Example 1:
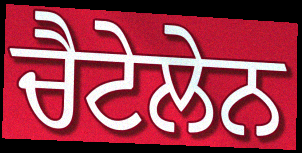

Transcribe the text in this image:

ਚੈਟੇਲੇਨ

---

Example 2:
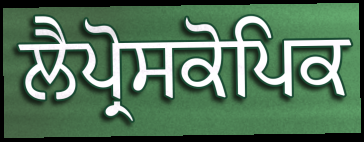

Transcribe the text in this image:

ਲੈਪ੍ਰੋਸਕੋਪਿਕ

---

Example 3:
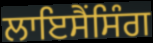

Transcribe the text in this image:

ਲਾਇਸੈਂਸਿੰਗ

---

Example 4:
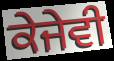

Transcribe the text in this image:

ਕੇਜੇਵੀ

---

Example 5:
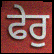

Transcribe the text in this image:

ਫੇਰੁ